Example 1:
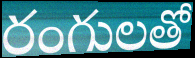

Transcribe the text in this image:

రంగులతో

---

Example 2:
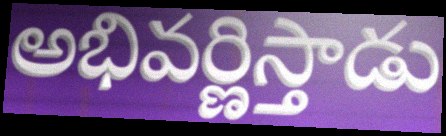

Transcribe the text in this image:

అభివర్ణిస్తాడు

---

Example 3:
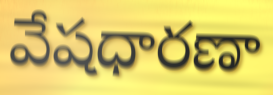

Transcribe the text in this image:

వేషధారణా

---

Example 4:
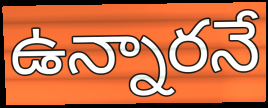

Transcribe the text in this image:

ఉన్నారనే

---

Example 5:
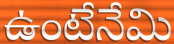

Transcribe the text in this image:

ఉంటేనేమి